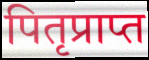
पितृप्राप्त